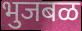
भुजबळ